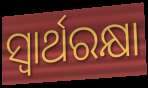
ସ୍ଵାର୍ଥରକ୍ଷା